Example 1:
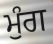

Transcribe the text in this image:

ਮੁੰਗ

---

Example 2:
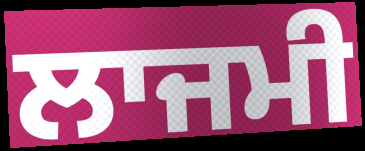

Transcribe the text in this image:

ਲਾਜਮੀ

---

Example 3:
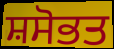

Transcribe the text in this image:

ਸ਼ਸੋਭਤ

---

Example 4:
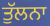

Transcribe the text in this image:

ਤੁੱਲਨਾ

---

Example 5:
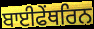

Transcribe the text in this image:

ਬਾਈਫੇਂਥਰਿਨ